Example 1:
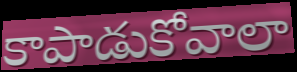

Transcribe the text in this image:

కాపాడుకోవాలా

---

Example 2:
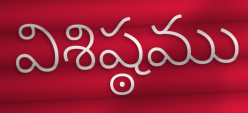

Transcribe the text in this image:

విశిష్ఠము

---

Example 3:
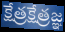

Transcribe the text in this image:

క్షేత్రక్షేత్రజ్ఞ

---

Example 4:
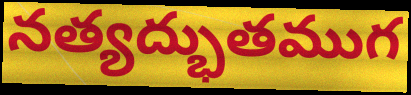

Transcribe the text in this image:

నత్యద్భుతముగ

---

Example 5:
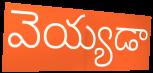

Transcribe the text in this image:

వెయ్యడా